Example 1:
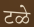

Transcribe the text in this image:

टळे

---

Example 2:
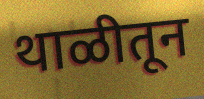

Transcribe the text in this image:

थाळीतून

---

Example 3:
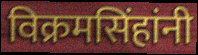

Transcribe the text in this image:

विक्रमसिंहांनी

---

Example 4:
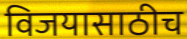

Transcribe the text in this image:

विजयासाठीच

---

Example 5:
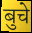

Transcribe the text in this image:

बुचे